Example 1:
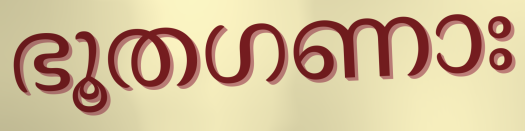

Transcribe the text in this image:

ഭൂതഗണാഃ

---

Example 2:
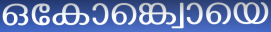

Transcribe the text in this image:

ഒകോങ്ക്വൊയെ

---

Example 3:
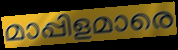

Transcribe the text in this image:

മാപ്പിളമാരെ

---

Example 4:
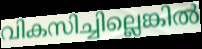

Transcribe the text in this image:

വികസിച്ചില്ലെങ്കിൽ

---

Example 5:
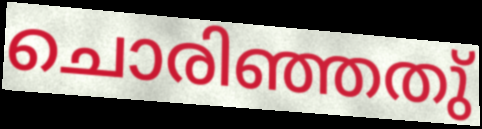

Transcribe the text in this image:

ചൊരിഞ്ഞതു്